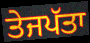
ਤੇਜਪੱਤਾ